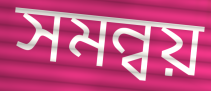
সমন্বয়